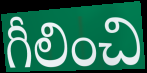
గీలించి